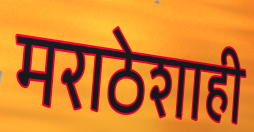
मराठेशाही